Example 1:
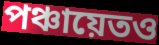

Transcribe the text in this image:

পঞ্চায়েতও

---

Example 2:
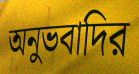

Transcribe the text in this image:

অনুভবাদির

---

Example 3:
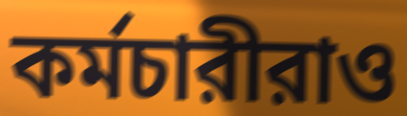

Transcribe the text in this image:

কর্মচারীরাও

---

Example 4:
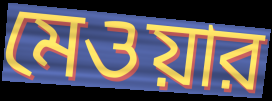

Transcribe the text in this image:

মেওয়ার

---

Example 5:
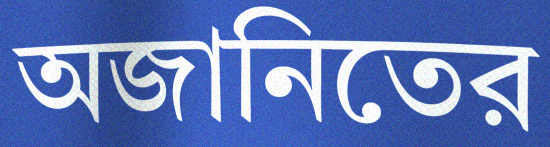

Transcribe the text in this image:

অজানিতের